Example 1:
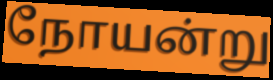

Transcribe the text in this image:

நோயன்று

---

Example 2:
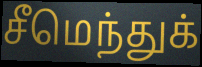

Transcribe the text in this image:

சீமெந்துக்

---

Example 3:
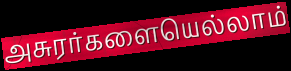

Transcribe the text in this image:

அசுரர்களையெல்லாம்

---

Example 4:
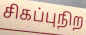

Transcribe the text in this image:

சிகப்புநிற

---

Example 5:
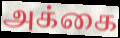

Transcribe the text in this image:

அக்கை